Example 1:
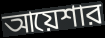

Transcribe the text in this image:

আয়েশার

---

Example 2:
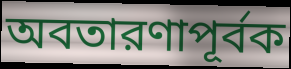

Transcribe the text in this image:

অবতারণাপূর্বক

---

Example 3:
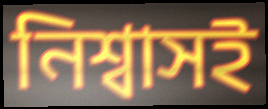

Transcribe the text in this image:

নিশ্বাসই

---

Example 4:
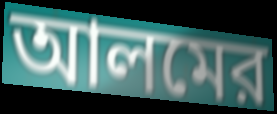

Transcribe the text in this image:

আলমের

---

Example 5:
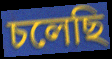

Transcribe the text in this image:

চলেছি